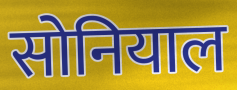
सोनियाल